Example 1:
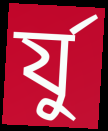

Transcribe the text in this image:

র্যু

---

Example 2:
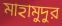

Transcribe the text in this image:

মাহামুদুর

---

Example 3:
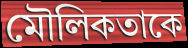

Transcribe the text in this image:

মৌলিকতাকে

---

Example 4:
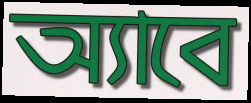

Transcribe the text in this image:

অ্যাবে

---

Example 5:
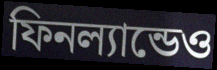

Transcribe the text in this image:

ফিনল্যান্ডেও